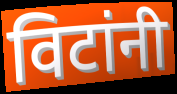
विटांनी